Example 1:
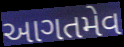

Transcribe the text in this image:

આગતમેવ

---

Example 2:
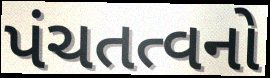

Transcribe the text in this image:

પંચતત્વનો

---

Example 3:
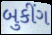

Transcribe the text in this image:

બુકીંગ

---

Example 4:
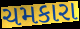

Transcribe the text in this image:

ચમકારા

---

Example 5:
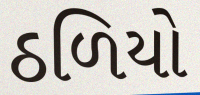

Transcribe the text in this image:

ઠળિયો